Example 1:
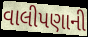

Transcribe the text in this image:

વાલીપણાની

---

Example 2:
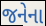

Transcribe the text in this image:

જનેના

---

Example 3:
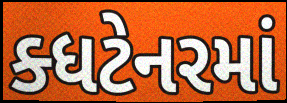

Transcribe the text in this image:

ક્ધટેનરમાં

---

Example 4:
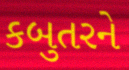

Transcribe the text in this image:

કબુતરને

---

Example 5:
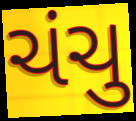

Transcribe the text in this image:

ચંચુ